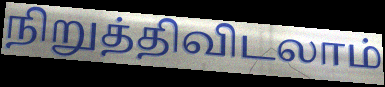
நிறுத்திவிடலாம்